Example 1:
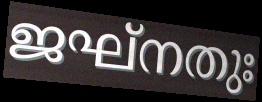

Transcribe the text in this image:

ജഘ്നതുഃ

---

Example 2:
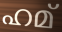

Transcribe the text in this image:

ഹമ്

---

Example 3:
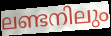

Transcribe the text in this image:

ലണ്ടനിലും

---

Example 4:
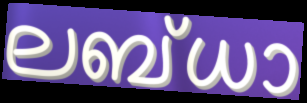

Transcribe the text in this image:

ലബ്ധാ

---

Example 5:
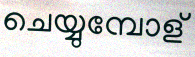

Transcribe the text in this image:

ചെയ്യുമ്പോള്